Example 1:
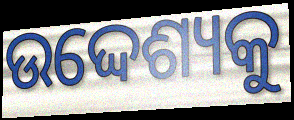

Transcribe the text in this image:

ଉଦ୍ଦେଶ୍ୟକୁ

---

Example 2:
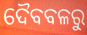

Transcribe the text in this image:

ଦୈବବଳରୁ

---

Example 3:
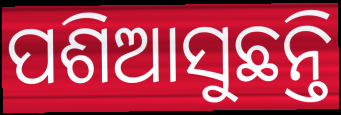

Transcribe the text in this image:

ପଶିଆସୁଛନ୍ତି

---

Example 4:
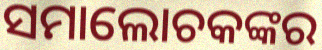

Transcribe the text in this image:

ସମାଲୋଚକଙ୍କର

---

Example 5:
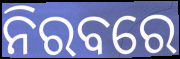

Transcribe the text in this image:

ନିରବରେ